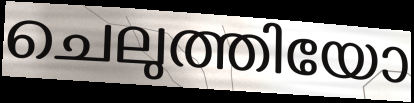
ചെലുത്തിയോ